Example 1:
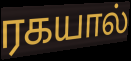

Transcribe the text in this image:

ரகயால்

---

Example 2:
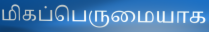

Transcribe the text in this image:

மிகப்பெருமையாக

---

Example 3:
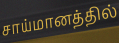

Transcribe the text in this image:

சாய்மானத்தில்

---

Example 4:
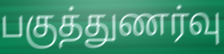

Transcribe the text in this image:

பகுத்துணர்வு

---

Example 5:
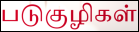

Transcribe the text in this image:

படுகுழிகள்